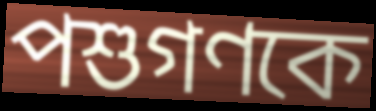
পশুগণকে